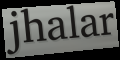
jhalar